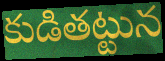
కుడితట్టున